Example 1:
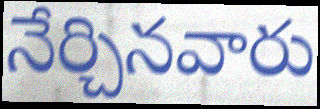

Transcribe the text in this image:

నేర్చినవారు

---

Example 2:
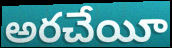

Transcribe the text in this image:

అరచేయీ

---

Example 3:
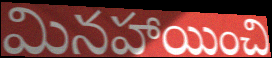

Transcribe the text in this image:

మినహాయించి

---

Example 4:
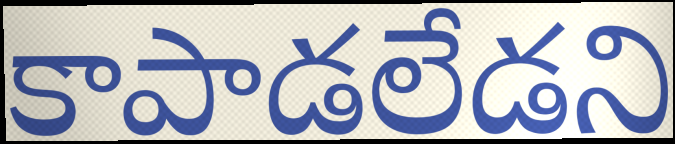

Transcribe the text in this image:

కాపాడలేడని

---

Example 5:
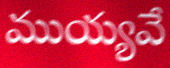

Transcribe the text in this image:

ముయ్యవే